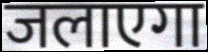
जलाएगा